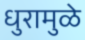
धुरामुळे